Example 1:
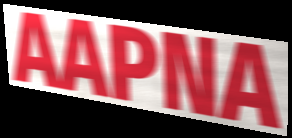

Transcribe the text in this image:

AAPNA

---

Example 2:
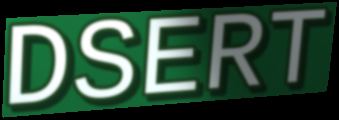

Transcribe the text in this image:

DSERT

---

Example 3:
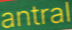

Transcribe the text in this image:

antral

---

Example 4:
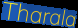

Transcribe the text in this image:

Tharala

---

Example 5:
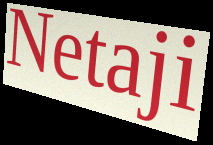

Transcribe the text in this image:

Netaji